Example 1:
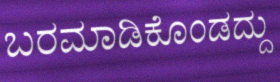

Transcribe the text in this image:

ಬರಮಾಡಿಕೊಂಡದ್ದು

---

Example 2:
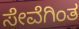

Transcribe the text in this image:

ಸೇವೆಗಿಂತ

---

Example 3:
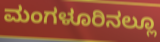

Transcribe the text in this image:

ಮಂಗಳೂರಿನಲ್ಲೂ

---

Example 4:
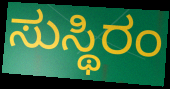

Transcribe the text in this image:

ಸುಸ್ಥಿರಂ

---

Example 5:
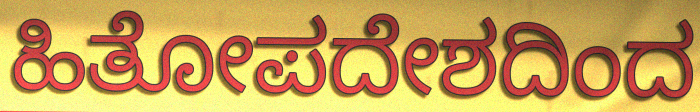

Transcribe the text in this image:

ಹಿತೋಪದೇಶದಿಂದ